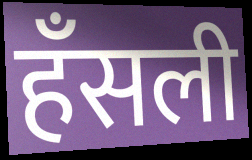
हँसली